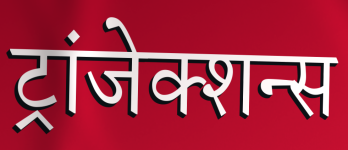
ट्रांजेक्शन्स